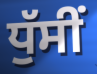
ਧੁੱਸੀਂ